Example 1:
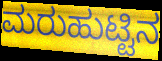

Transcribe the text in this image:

ಮರುಹುಟ್ಟಿನ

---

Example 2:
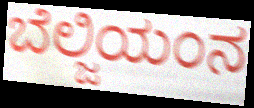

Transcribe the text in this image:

ಬೆಲ್ಜಿಯಂನ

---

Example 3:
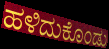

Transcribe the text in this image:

ಹಳಿದುಕೊಂಡು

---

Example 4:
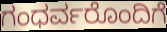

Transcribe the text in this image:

ಗಂಧರ್ವರೊಂದಿಗೆ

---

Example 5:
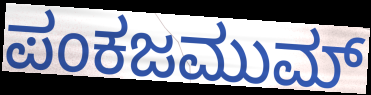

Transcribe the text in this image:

ಪಂಕಜಮುಮ್